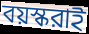
বয়স্করাই